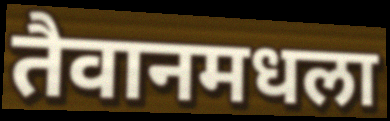
तैवानमधला